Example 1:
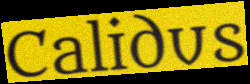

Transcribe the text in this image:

Calidus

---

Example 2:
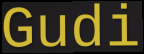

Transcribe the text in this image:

Gudi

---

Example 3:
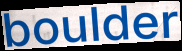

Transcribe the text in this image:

boulder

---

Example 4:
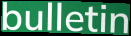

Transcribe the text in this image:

bulletin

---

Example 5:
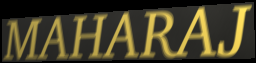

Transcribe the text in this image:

MAHARAJ